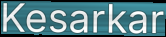
Kesarkar